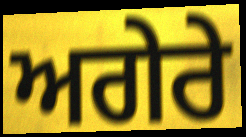
ਅਗੇਰੇ